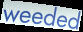
weeded